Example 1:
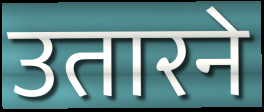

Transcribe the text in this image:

उतारने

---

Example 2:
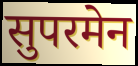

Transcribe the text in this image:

सुपरमेन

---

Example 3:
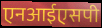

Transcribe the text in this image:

एनआईएसपी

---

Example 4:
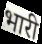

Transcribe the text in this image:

भारी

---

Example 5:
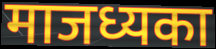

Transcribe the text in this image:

माजध्यका